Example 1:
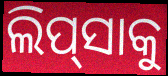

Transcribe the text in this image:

ଲିପ୍‍ସାକୁ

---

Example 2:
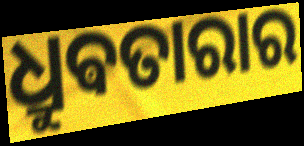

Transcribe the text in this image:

ଧ୍ରୁଵତାରାର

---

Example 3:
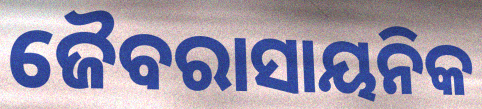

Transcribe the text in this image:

ଜୈବରାସାୟନିକ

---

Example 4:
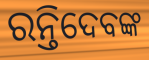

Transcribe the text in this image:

ରନ୍ତିଦେବଙ୍କ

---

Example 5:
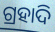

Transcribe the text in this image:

ଗ୍ରହାଦି